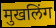
मुखलिंग